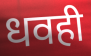
धवही